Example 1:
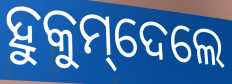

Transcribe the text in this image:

ହୁକୁମ୍‌ଦେଲେ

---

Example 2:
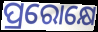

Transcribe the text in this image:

ପ୍ରରୋକ୍ଷେ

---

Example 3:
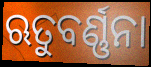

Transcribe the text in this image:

ଋତୁବର୍ଣ୍ଣନା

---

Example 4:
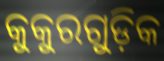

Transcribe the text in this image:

କୁକୁରଗୁଡ଼ିକ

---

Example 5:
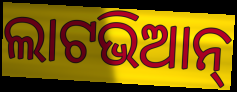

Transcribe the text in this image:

ଲାଟଭିଆନ୍